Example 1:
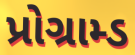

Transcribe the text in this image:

પ્રોગ્રામ્ડ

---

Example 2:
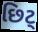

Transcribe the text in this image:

છિટ્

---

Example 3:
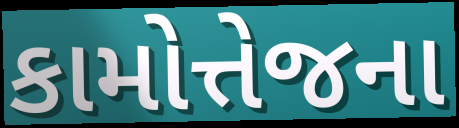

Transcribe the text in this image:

કામોત્તેજના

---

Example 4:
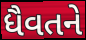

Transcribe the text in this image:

ધૈવતને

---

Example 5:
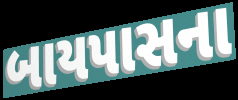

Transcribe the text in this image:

બાયપાસના